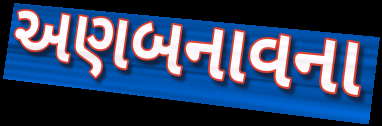
અણબનાવના